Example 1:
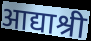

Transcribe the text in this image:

आद्याश्री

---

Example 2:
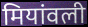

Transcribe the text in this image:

मियांवली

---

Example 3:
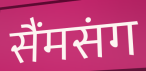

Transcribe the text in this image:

सैंमसंग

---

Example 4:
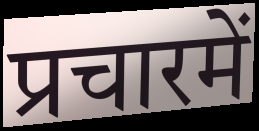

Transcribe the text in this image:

प्रचारमें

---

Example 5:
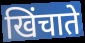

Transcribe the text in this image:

खिंचाते